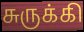
சுருக்கி